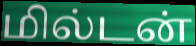
மில்டன்